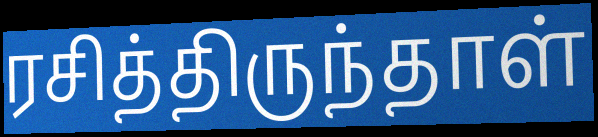
ரசித்திருந்தாள்